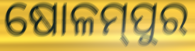
ଷୋଳମ୍‌ପୁର